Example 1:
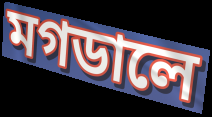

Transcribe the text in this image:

মগডালে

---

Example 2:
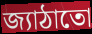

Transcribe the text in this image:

জ্যাঠাতো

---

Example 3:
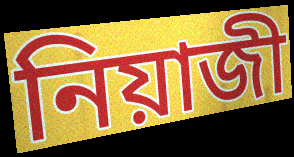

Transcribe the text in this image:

নিয়াজী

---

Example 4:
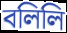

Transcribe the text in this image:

বলিলি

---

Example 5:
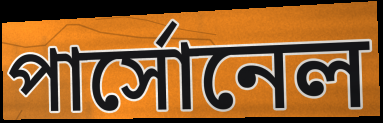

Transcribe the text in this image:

পার্সোনেল